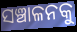
ସଞ୍ଚାଳନକୁ